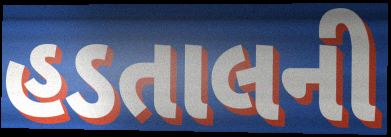
હડતાલની